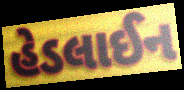
હેડલાઈન